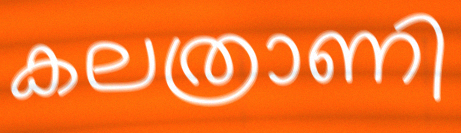
കലത്രാണി